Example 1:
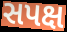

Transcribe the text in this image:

સપક્ષ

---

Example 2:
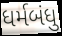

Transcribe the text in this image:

ધર્મબંધુ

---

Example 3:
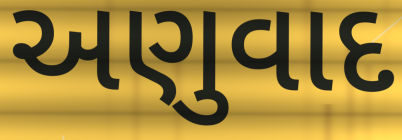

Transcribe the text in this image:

અણુવાદ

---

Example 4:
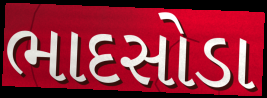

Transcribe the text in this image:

ભાદસોડા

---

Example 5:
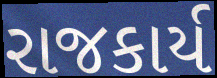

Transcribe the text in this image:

રાજકાર્ય